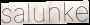
salunke